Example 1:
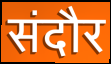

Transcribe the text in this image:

संदौर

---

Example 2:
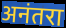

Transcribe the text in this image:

अनंतरा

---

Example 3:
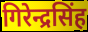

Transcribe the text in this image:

गिरेन्द्रसिंह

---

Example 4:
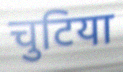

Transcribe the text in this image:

चुटिया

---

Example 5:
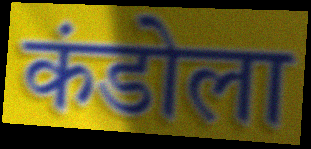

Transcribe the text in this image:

कंडोला